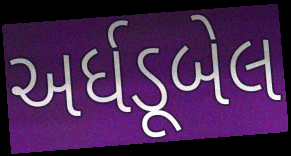
અર્ધડૂબેલ